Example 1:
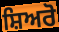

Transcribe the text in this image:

ਸ਼ਿਅਰੋ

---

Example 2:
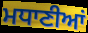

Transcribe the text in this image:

ਮਧਾਣੀਆਂ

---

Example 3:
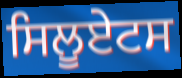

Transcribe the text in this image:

ਸਿਲੂਏਟਸ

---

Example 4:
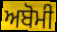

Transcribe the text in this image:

ਅਬੋਮੀ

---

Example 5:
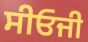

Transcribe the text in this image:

ਸੀਓਜੀ